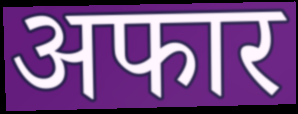
अफार